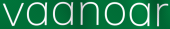
vaanoar